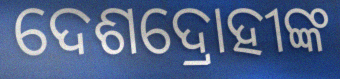
ଦେଶଦ୍ରୋହୀଙ୍କ